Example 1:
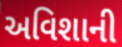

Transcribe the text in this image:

અવિશાની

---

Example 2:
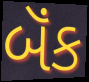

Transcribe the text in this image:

બૅંક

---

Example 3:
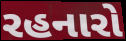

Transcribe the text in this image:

રહનારો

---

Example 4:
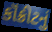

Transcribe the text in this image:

કૉંક્રીટનું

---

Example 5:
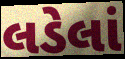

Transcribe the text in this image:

લડેલાં